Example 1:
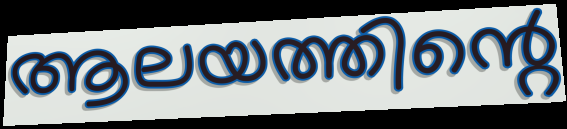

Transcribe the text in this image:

ആലയത്തിന്റെ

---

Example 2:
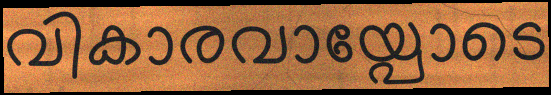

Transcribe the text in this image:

വികാരവായ്പോടെ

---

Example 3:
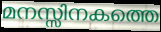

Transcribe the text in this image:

മനസ്സിനകത്തെ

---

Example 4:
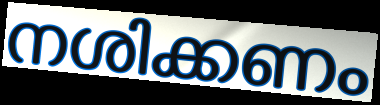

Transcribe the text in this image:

നശിക്കണം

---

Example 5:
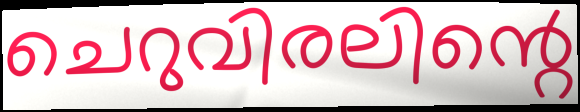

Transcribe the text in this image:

ചെറുവിരലിന്റെ